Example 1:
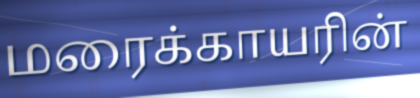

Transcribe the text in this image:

மரைக்காயரின்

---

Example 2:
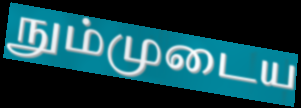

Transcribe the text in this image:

நும்முடைய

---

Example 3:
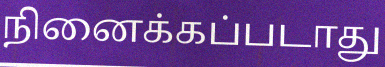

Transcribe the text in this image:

நினைக்கப்படாது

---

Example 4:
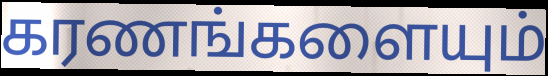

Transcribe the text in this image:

கரணங்களையும்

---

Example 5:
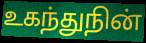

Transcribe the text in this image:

உகந்துநின்